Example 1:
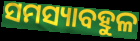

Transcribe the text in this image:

ସମସ୍ୟାବହୁଳ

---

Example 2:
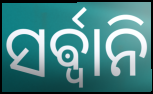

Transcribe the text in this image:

ସର୍ଵ୍ଵାନି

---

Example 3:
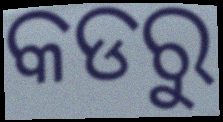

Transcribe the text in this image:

କଡରୁ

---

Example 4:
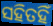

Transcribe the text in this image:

ସହିତହିଁ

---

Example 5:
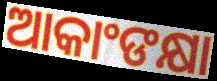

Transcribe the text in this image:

ଆକାଂଙକ୍ଷା